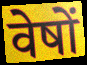
वेषों